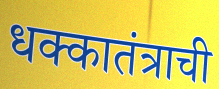
धक्कातंत्राची